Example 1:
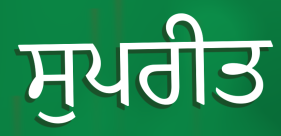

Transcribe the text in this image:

ਸੁਪਰੀਤ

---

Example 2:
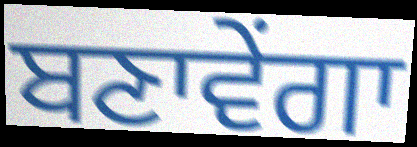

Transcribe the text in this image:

ਬਣਾਵੇਂਗਾ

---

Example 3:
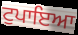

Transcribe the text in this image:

ਟੁਪਾਇਆ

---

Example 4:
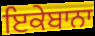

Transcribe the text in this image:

ਇਕੇਬਾਨਾ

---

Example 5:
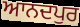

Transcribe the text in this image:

ਆਨਦਪੁਰ